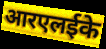
आरएलईके